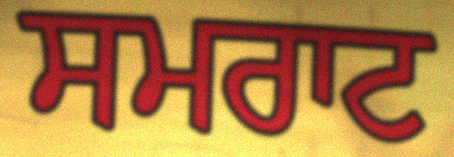
ਸਮਰਾਟ